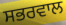
ਸਭਰਵਾਲ